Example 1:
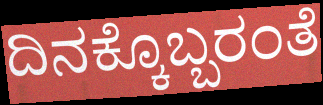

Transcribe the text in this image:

ದಿನಕ್ಕೊಬ್ಬರಂತೆ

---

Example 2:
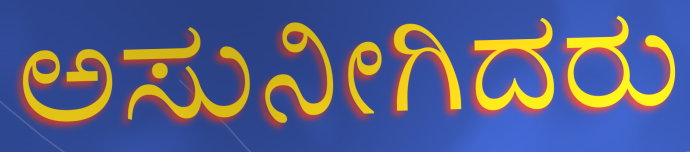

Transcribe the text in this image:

ಅಸುನೀಗಿದರು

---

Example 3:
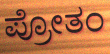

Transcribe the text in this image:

ಪ್ರೋತಂ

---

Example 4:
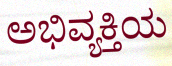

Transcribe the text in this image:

ಅಭಿವ್ಯಕ್ತಿಯ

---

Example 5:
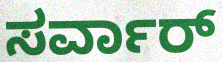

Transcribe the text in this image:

ಸರ್ವಾರ್